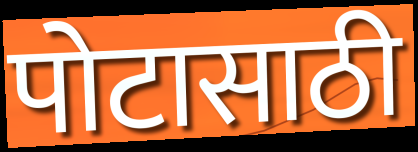
पोटासाठी